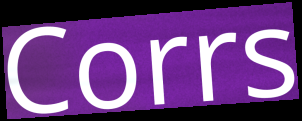
Corrs